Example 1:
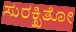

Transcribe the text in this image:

ಸುರಕ್ಖಿತೋ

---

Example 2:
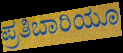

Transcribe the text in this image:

ಪ್ರತಿಬಾರಿಯೂ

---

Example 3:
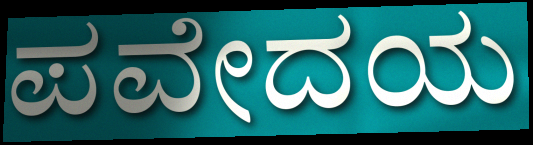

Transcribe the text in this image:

ಪವೇದಯ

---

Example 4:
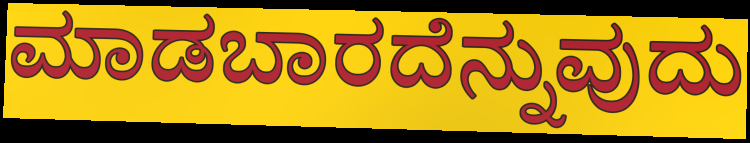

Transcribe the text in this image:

ಮಾಡಬಾರದೆನ್ನುವುದು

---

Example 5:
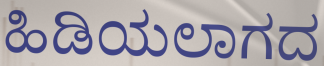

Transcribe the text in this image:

ಹಿಡಿಯಲಾಗದ